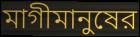
মাগীমানুষের